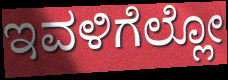
ಇವಳಿಗೆಲ್ಲೋ